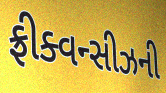
ફ્રીક્વન્સીઝની